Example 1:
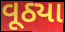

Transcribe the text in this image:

વૂઠ્યા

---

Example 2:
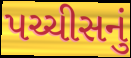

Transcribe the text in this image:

પચ્ચીસનું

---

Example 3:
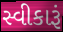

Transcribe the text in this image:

સ્વીકારૂં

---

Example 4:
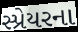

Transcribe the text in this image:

સ્પ્રેયરના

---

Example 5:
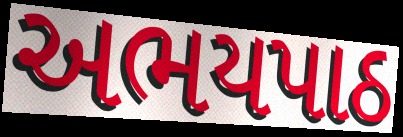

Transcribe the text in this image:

અભયપાઠ